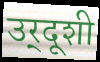
उर्दूशी